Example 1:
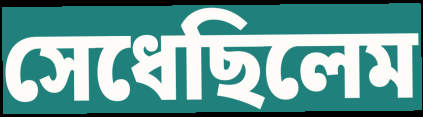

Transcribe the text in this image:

সেধেছিলেম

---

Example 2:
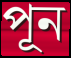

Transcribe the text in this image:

পূন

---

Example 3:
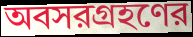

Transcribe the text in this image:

অবসরগ্রহণের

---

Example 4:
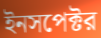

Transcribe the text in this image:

ইনসপেক্টর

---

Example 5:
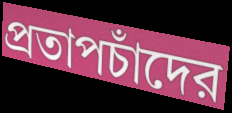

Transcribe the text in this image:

প্রতাপচাঁদের